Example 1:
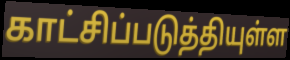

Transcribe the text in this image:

காட்சிப்படுத்தியுள்ள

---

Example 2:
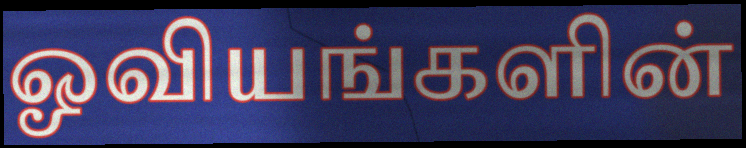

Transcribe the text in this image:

ஓவியங்களின்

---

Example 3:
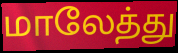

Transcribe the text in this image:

மாலேத்து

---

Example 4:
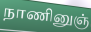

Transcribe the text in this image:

நாணினுஞ்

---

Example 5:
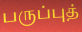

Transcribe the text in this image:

பருப்புத்